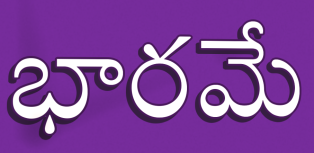
భారమే